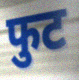
फुट